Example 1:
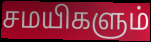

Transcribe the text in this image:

சமயிகளும்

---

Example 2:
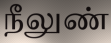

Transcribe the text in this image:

நீலுண்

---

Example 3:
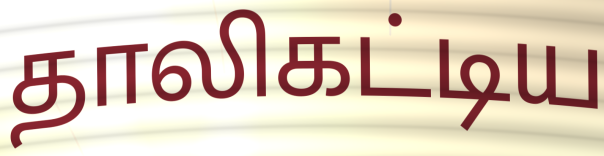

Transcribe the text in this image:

தாலிகட்டிய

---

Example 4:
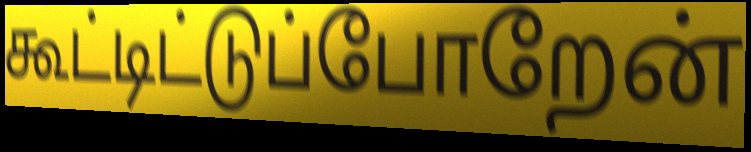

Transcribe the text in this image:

கூட்டிட்டுப்போறேன்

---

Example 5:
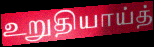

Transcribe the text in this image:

உறுதியாய்த்